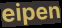
eipen